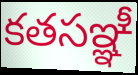
కతసఞ్ఞీ